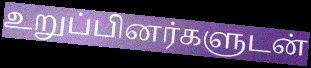
உறுப்பினர்களுடன்